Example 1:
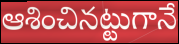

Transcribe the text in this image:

ఆశించినట్టుగానే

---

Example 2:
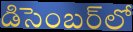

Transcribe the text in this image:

డిసెంబర్‌లో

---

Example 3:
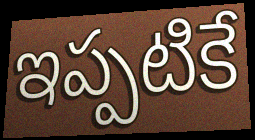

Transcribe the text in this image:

ఇప్పటికే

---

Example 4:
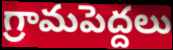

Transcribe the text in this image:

గ్రామపెద్దలు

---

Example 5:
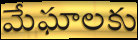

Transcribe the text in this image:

మేఘాలకు